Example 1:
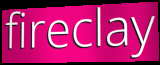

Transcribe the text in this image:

fireclay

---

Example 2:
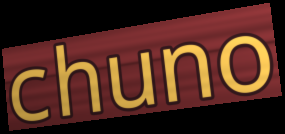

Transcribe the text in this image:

chuno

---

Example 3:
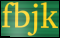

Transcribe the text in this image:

fbjk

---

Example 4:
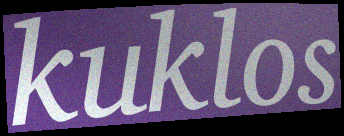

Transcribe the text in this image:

kuklos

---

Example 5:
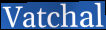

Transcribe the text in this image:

Vatchal